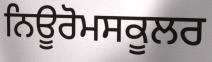
ਨਿਊਰੋਮਸਕੂਲਰ